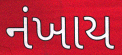
નંખાય